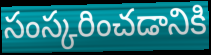
సంస్కరించడానికి